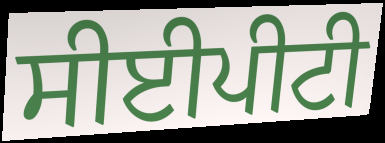
ਸੀਈਪੀਟੀ